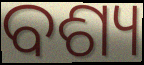
ବଶ୍ୟ